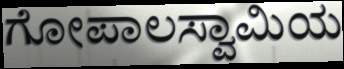
ಗೋಪಾಲಸ್ವಾಮಿಯ